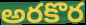
అరకొర